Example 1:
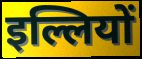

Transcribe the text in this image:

इल्लियों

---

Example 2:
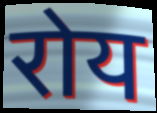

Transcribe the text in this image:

रोय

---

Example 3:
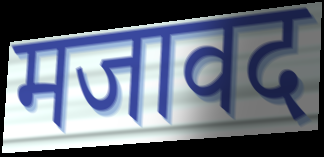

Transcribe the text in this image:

मजावद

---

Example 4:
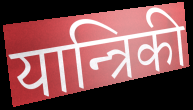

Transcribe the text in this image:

यान्त्रिकी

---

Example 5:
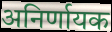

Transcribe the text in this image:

अनिर्णायक